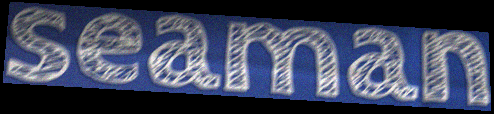
seaman